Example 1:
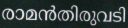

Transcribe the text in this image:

രാമൻതിരുവടി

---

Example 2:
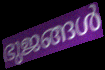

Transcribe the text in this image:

ഭുജങ്ങൾ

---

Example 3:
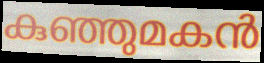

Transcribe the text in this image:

കുഞ്ഞുമകൻ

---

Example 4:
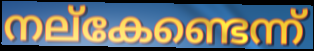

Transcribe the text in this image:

നല്കേണ്ടെന്ന്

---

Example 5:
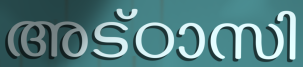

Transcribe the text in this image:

അട്ഠാസി